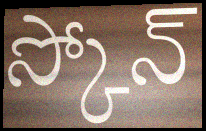
స్కోన్